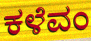
ಕಳೆವಂ